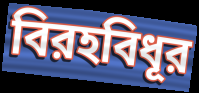
বিরহবিধূর